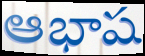
ఆభాష